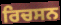
ਰਿਚਸਨ